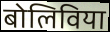
बोलिविया